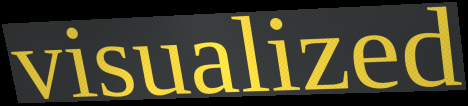
visualized